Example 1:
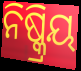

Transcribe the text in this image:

ନିଷ୍କ୍ରିୟ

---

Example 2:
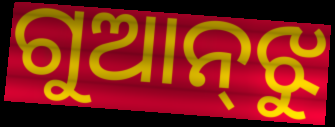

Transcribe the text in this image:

ଗୁଆନ୍‌ଝୁ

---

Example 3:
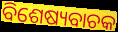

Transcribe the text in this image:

ବିଶେଷ୍ୟବାଚକ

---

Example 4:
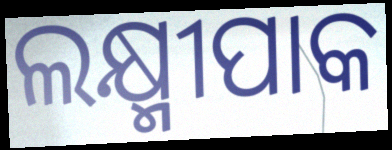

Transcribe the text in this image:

ଲକ୍ଷ୍ମୀପାକ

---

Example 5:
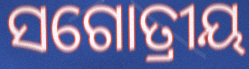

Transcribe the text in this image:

ସଗୋତ୍ରୀୟ